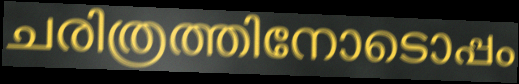
ചരിത്രത്തിനോടൊപ്പം